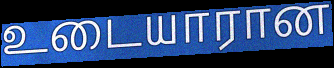
உடையாரான